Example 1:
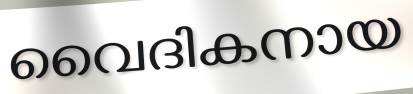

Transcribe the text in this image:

വൈദികനായ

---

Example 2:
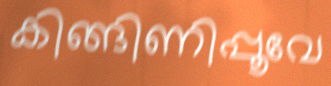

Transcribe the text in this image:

കിങ്ങിണിപ്പൂവേ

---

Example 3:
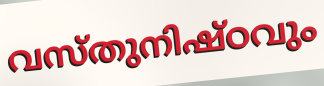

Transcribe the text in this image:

വസ്തുനിഷ്ഠവും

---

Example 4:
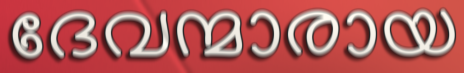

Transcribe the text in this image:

ദേവന്മാരായ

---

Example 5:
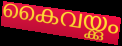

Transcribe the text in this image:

കൈവയ്ക്കും